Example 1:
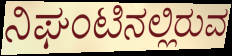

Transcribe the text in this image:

ನಿಘಂಟಿನಲ್ಲಿರುವ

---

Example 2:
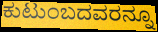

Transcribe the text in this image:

ಕುಟುಂಬದವರನ್ನೂ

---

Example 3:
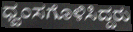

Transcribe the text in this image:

ಧ್ವಂಸಗೊಳಿಸಿದ್ದರು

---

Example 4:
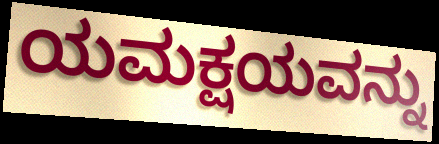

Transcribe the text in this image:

ಯಮಕ್ಷಯವನ್ನು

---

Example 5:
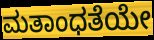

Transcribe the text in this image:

ಮತಾಂಧತೆಯೇ